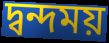
দ্বন্দময়